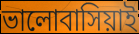
ভালোবাসিয়াই